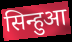
सिन्हुआ